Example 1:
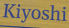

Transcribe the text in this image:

Kiyoshi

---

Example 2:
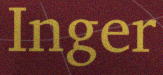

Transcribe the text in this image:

Inger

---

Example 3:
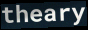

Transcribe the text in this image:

theary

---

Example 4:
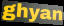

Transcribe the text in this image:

ghyan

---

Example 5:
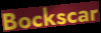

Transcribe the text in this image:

Bockscar